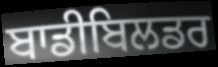
ਬਾਡੀਬਿਲਡਰ